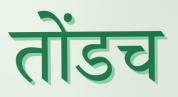
तोंडच